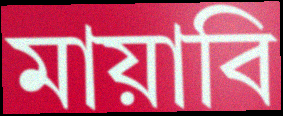
মায়াবি